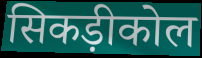
सिकड़ीकोल